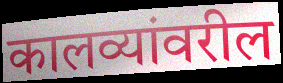
कालव्यांवरील